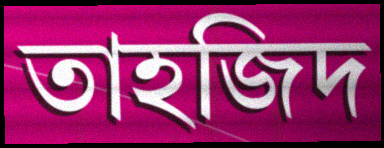
তাহজিদ